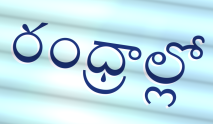
రంధ్రాల్లో